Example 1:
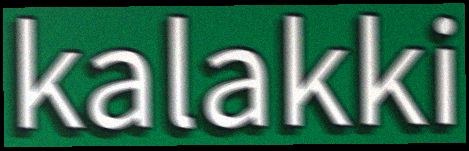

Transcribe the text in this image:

kalakki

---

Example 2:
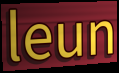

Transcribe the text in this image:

leun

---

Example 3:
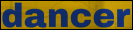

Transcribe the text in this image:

dancer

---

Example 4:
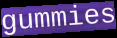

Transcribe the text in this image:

gummies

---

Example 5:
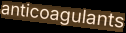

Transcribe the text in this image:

anticoagulants